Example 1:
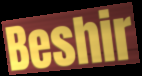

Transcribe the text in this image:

Beshir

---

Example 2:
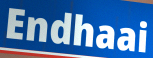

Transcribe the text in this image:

Endhaai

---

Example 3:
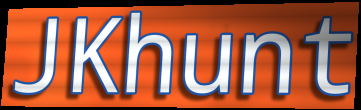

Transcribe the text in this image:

JKhunt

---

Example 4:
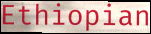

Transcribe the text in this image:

Ethiopian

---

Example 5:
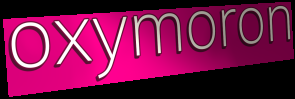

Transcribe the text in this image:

oxymoron